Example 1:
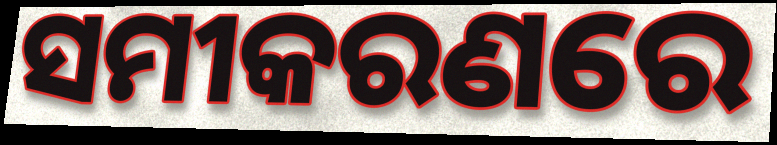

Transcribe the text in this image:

ସମୀକରଣରେ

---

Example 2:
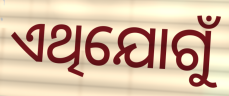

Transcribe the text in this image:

ଏଥିଯୋଗୁଁ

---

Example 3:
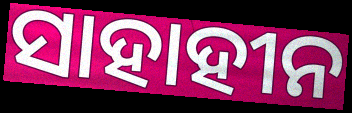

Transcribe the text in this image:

ସାହାହୀନ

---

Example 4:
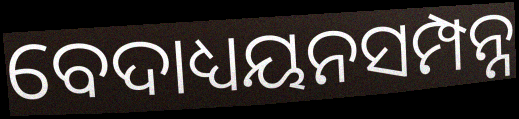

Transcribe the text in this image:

ବେଦାଧ୍ୟୟନସମ୍ପନ୍ନ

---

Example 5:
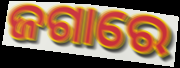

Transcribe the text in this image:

ଜଗାରେ